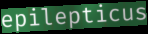
epilepticus